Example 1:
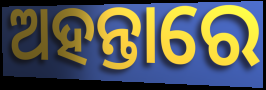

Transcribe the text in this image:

ଅହନ୍ତାରେ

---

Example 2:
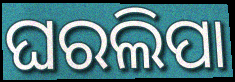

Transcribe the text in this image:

ଘରଲିପା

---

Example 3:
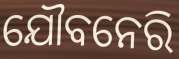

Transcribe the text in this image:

ଯୌବନେରି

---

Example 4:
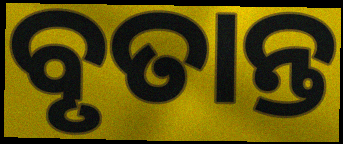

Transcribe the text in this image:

ବୃତାନ୍ତ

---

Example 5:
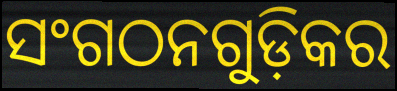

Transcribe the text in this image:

ସଂଗଠନଗୁଡ଼ିକର